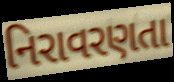
નિરાવરણતા